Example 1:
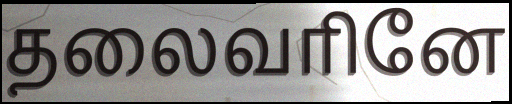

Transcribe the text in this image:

தலைவரினே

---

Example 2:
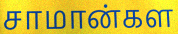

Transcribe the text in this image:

சாமான்கள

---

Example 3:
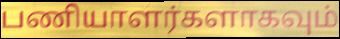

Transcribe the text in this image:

பணியாளர்களாகவும்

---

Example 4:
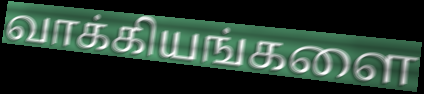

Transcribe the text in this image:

வாக்கியங்களை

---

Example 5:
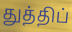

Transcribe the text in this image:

துத்திப்